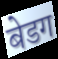
बेडग